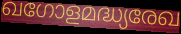
ഖഗോളമദ്ധ്യരേഖ